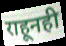
राहूनही